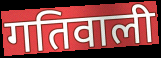
गतिवाली